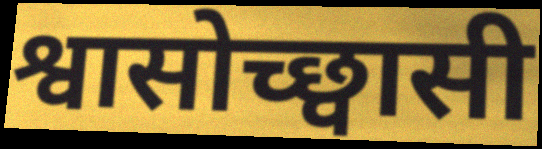
श्वासोच्छ्वासी